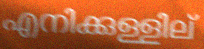
എനിക്കുള്ളില്